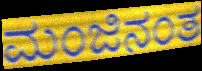
ಮಂಜಿನಂತ